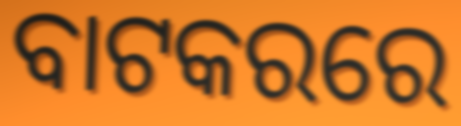
ବାଟକରରେ